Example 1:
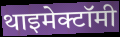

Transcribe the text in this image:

थाइमेक्टॉमी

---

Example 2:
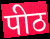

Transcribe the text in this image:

पीठ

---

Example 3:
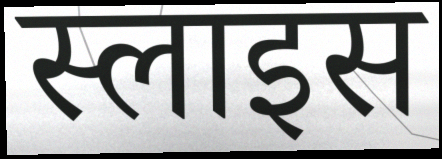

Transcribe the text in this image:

स्लाइस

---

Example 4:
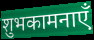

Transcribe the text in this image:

शुभकामनाएँ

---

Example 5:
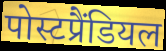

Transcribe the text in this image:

पोस्टप्रैंडियल